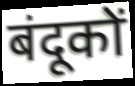
बंदूकों